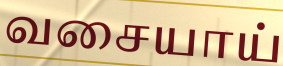
வசையாய்